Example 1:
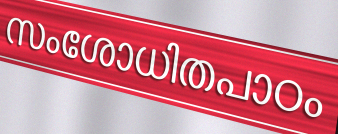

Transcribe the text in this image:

സംശോധിതപാഠം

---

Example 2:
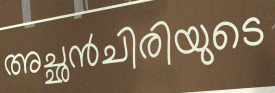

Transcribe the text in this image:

അച്ഛൻചിരിയുടെ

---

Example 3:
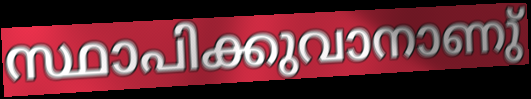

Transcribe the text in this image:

സ്ഥാപിക്കുവാനാണു്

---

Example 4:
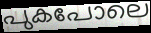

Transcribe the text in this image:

പുകപോലെ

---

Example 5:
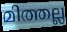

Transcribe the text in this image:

മിത്തല്ല